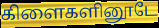
கிளைகளினூடே